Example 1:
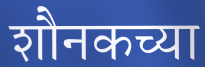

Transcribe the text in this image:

शौनकच्या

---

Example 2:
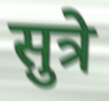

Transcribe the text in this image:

सुत्रे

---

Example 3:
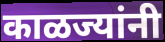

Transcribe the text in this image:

काळज्यांनी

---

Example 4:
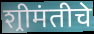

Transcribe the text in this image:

श्रीमंतीचे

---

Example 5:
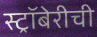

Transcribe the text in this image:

स्ट्रॉबेरीची